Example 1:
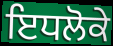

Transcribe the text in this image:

ਇਧਲੋਕੇ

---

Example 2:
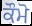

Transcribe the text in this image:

ਕੌਮੋ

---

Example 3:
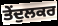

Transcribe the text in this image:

ਤੇਂਦੁਲਕਰ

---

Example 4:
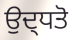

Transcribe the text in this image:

ਉਦ੍ਧਤੋ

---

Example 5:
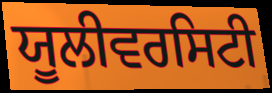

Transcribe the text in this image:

ਯੂਲੀਵਰਸਿਟੀ